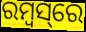
ରମ୍ବସ୍‌ରେ